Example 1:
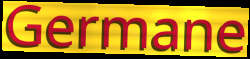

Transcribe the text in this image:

Germane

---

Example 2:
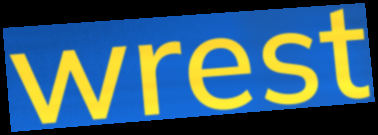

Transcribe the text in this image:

wrest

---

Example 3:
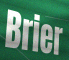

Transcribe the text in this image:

Brier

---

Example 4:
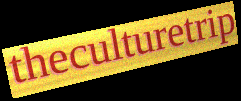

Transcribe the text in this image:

theculturetrip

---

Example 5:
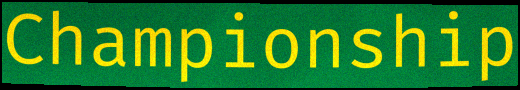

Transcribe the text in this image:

Championship